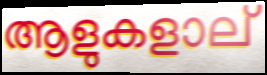
ആളുകളാല്